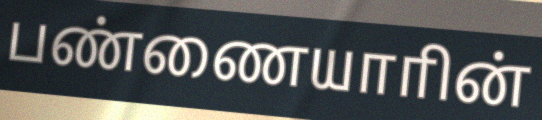
பண்ணையாரின்